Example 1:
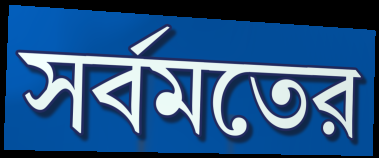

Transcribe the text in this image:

সর্বমতের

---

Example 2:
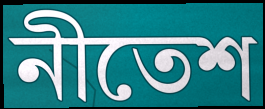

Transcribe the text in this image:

নীতেশ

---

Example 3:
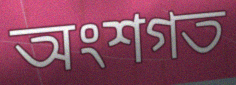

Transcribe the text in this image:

অংশগত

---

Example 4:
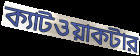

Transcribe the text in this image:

ক্যাটওয়াকটার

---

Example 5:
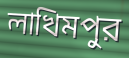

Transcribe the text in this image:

লাখিমপুর